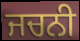
ਜਚਨੀ